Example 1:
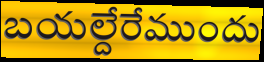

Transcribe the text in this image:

బయల్దేరేముందు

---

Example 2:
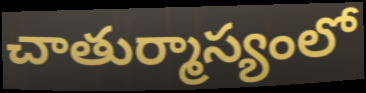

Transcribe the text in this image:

చాతుర్మాస్యంలో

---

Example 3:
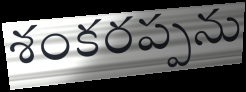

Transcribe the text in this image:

శంకరప్పను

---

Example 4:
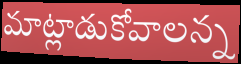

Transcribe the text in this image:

మాట్లాడుకోవాలన్న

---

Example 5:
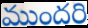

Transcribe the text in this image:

ముందరి